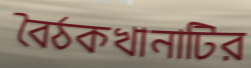
বৈঠকখানাটির